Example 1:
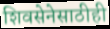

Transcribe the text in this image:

शिवसेनेसाठीही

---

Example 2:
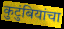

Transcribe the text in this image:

कुटुंबियांचा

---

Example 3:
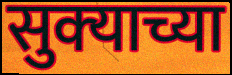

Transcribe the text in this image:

सुक्‍याच्या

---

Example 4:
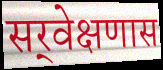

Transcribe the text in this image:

सर्वेक्षणास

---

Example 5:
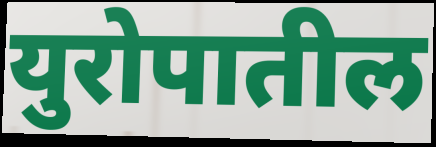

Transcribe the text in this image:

युरोपातील